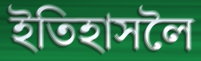
ইতিহাসলৈ